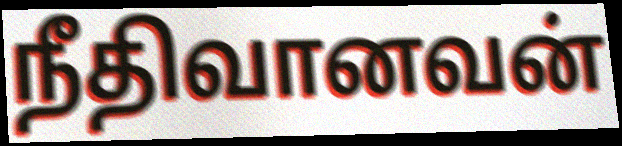
நீதிவானவன்